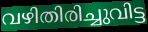
വഴിതിരിച്ചുവിട്ട